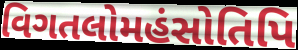
વિગતલોમહંસોતિપિ